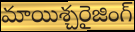
మాయిశ్చరైజింగ్